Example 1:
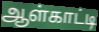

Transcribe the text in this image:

ஆள்காட்டி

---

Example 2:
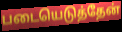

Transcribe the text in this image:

படையெடுத்தேன்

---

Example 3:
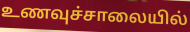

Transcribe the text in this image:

உணவுச்சாலையில்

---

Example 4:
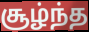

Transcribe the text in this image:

சூழ்ந்த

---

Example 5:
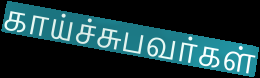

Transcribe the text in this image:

காய்ச்சுபவர்கள்